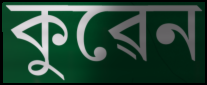
কুৱেন